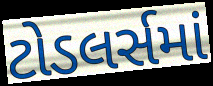
ટોડલર્સમાં